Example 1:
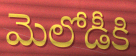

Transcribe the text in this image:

మెలోడీకి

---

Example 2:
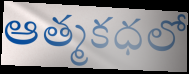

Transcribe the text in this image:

ఆత్మకధలో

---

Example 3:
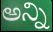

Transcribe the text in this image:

అన్ని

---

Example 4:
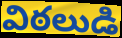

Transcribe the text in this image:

విఠలుడి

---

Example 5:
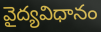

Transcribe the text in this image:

వైద్యవిధానం